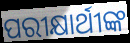
ପରୀକ୍ଷାର୍ଥୀଙ୍କ